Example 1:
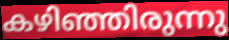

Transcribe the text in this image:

കഴിഞ്ഞിരുന്നു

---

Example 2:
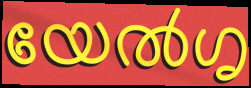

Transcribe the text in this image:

യേൽഗൃ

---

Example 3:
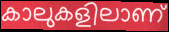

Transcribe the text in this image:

കാലുകളിലാണ്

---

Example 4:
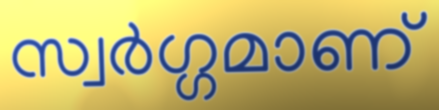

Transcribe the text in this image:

സ്വർഗ്ഗമാണ്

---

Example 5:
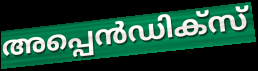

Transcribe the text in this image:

അപ്പെൻഡിക്സ്